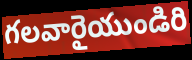
గలవారైయుండిరి